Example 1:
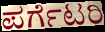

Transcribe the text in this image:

ಪರ್ಗೆಟರಿ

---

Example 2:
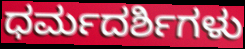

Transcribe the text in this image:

ಧರ್ಮದರ್ಶಿಗಳು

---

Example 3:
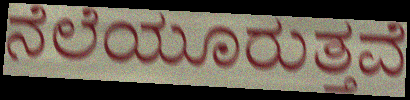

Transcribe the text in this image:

ನೆಲೆಯೂರುತ್ತವೆ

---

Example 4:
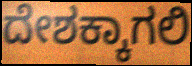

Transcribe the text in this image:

ದೇಶಕ್ಕಾಗಲಿ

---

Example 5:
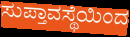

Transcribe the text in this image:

ಸುಪ್ತಾವಸ್ಥೆಯಿಂದ